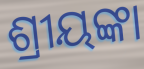
ଶ୍ରୀୟଙ୍କା